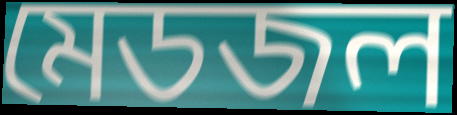
মেডজল